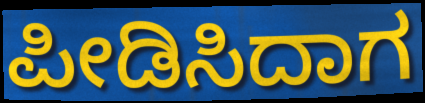
ಪೀಡಿಸಿದಾಗ